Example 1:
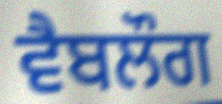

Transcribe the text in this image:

ਵੈਬਲੌਗ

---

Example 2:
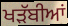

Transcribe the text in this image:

ਖੜੱਬੀਆਂ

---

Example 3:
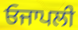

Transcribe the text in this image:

ਓਜਾਪਲੀ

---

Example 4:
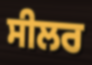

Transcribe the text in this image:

ਸੀਲਰ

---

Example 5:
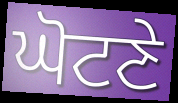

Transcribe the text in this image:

ਘੋਟਣੇ